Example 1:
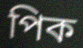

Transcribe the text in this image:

পিক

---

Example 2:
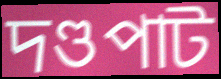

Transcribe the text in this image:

দণ্ডপাট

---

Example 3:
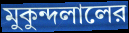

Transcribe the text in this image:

মুকুন্দলালের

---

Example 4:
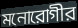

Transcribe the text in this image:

মনোরোগীর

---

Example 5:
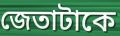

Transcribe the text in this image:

জেতাটাকে